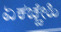
ಏಕಚ್ಚೇಹಿ